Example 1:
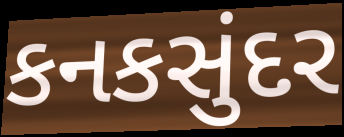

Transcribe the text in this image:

કનકસુંદર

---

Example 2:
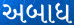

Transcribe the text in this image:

અબાધ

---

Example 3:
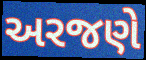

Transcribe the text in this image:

અરજણે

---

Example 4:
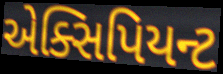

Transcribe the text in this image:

એક્સિપિયન્ટ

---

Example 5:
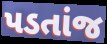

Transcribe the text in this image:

પડતાંજ